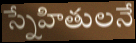
స్నేహితులనే